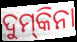
ଦୁମ୍‌କିନା